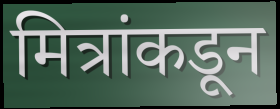
मित्रांकडून